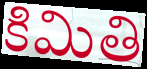
కిమితి